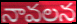
నావలన